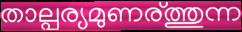
താല്പര്യമുണര്ത്തുന്ന